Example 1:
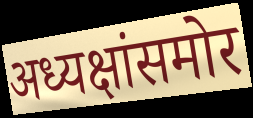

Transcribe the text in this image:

अध्यक्षांसमोर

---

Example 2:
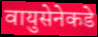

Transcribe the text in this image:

वायुसेनेकडे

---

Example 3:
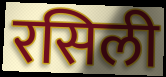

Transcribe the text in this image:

रसिली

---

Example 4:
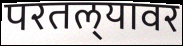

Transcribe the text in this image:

परतल्यावर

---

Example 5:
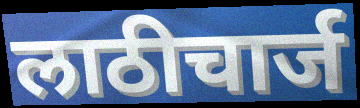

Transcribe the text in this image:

लाठीचार्ज